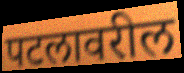
पटलावरील